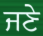
ਜਣੇ